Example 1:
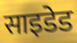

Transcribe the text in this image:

साइडेड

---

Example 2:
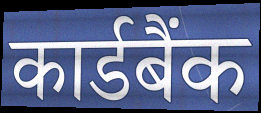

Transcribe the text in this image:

कार्डबैंक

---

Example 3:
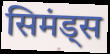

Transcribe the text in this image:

सिमंड्स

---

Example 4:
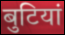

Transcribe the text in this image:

बुटियां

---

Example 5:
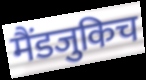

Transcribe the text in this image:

मैंडजुकिच